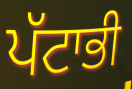
ਪੱਟਾਭੀ